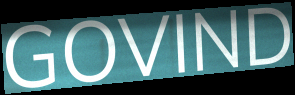
GOVIND